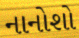
નાનોશો